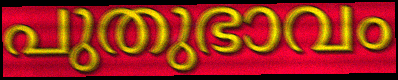
പുതുഭാവം